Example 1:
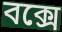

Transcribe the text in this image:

বক্সে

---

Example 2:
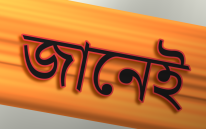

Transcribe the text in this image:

জানেই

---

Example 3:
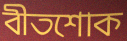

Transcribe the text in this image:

বীতশোক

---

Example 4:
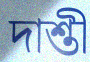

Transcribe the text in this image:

দাশ্তী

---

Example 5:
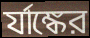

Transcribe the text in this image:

র্যাঙ্কের